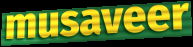
musaveer